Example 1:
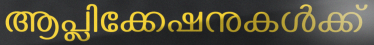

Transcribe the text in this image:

ആപ്ലിക്കേഷനുകൾക്ക്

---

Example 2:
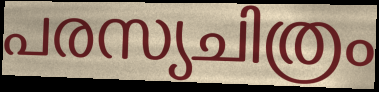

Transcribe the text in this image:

പരസ്യചിത്രം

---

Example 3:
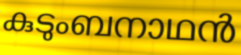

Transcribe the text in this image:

കുടുംബനാഥൻ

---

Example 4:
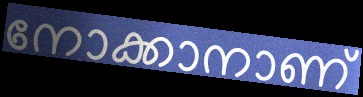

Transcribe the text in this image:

നോക്കാനാണ്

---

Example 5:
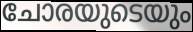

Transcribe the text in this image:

ചോരയുടെയും